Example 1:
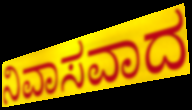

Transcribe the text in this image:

ನಿವಾಸವಾದ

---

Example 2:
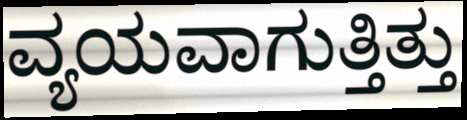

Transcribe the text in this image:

ವ್ಯಯವಾಗುತ್ತಿತ್ತು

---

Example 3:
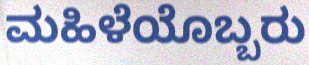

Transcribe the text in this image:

ಮಹಿಳೆಯೊಬ್ಬರು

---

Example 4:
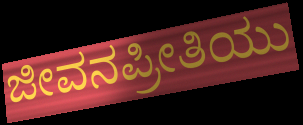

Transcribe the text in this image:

ಜೀವನಪ್ರೀತಿಯು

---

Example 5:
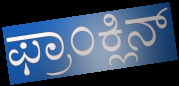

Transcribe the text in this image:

ಫ್ರಾಂಕ್ಲಿನ್